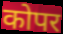
कोपर